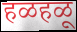
हळहळू